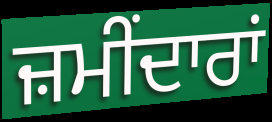
ਜ਼ਮੀਂਦਾਰਾਂ